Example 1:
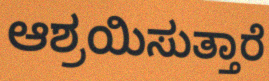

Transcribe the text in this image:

ಆಶ್ರಯಿಸುತ್ತಾರೆ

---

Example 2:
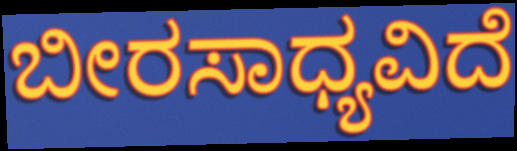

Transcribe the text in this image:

ಬೀರಸಾಧ್ಯವಿದೆ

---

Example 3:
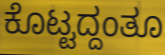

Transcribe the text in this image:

ಕೊಟ್ಟದ್ದಂತೂ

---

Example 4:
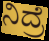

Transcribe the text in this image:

ನಿದ್ರೆ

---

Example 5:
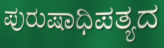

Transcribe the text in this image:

ಪುರುಷಾಧಿಪತ್ಯದ